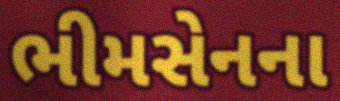
ભીમસેનના